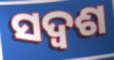
ସଦ୍ଵଶ